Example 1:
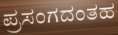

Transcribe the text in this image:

ಪ್ರಸಂಗದಂತಹ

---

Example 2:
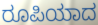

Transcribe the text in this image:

ರೂಪಿಯಾದ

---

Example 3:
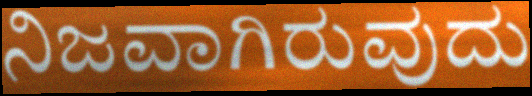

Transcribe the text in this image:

ನಿಜವಾಗಿರುವುದು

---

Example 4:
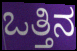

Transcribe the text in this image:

ಒತ್ತಿನ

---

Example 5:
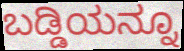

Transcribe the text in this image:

ಬಡ್ಡಿಯನ್ನೂ